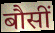
बौसीं